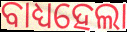
ବାଧ୍ୟହେଲା